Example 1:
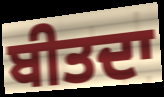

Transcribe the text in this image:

ਬੀਤਦਾ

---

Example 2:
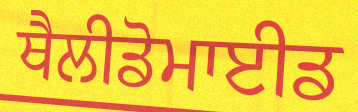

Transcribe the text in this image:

ਥੈਲੀਡੋਮਾਈਡ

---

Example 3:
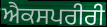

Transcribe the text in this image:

ਐਕਸਪਰੀਰੀ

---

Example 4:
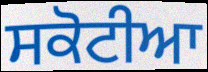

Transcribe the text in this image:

ਸਕੋਟੀਆ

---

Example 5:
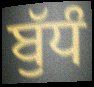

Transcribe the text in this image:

ਬੁੱਧੰ